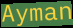
Ayman